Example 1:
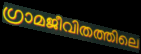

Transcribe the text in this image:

ഗ്രാമജീവിതത്തിലെ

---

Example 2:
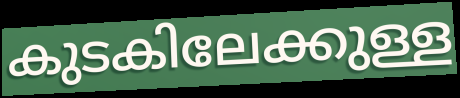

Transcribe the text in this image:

കുടകിലേക്കുള്ള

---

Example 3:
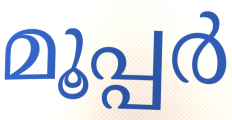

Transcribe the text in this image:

മൂപ്പർ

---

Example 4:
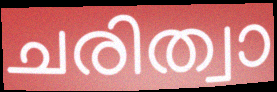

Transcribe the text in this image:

ചരിത്വാ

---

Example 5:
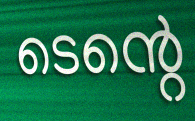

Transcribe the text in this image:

ടെന്റെ